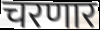
चरणार